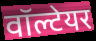
वॉल्टेयर